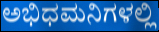
ಅಭಿಧಮನಿಗಳಲ್ಲಿ